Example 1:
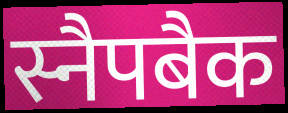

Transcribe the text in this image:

स्नैपबैक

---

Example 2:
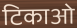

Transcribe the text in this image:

टिकाओ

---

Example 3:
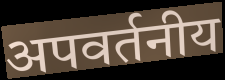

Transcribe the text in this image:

अपवर्तनीय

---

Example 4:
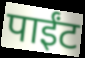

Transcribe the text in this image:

पाईंट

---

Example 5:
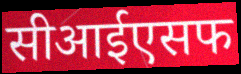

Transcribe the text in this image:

सीआईएसफ